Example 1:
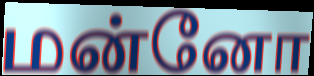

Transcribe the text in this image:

மன்னோ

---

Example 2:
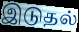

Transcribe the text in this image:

இடுதல்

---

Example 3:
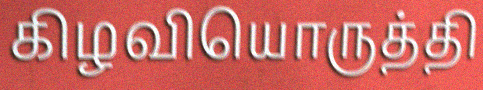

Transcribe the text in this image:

கிழவியொருத்தி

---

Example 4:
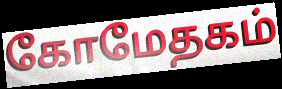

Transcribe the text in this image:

கோமேதகம்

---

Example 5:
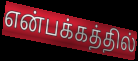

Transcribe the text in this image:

என்பக்கத்தில்